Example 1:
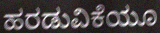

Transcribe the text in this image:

ಹರಡುವಿಕೆಯೂ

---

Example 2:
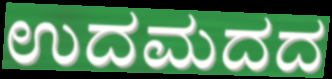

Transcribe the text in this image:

ಉದಮದದ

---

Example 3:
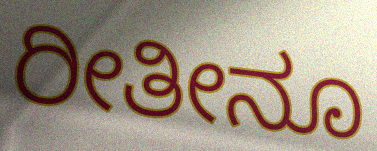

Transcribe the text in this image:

ರೀತೀನೂ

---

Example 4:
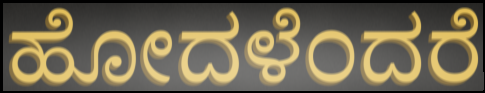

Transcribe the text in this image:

ಹೋದಳೆಂದರೆ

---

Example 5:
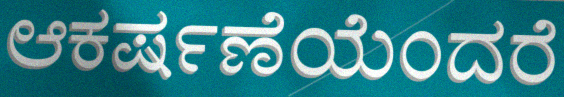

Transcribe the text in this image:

ಆಕರ್ಷಣೆಯೆಂದರೆ